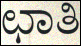
ಛಾತಿ